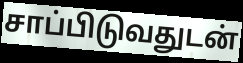
சாப்பிடுவதுடன்